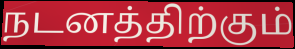
நடனத்திற்கும்